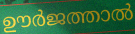
ഊർജത്താൽ